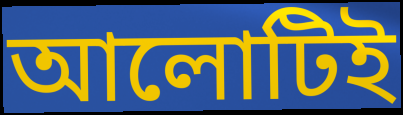
আলোটিই